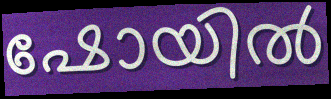
ഷോയിൽ